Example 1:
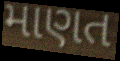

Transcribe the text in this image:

માણત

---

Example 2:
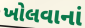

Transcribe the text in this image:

ખોલવાનાં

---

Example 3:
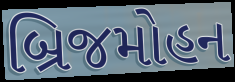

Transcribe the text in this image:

બ્રિજમોહન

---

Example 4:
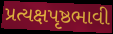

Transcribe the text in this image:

પ્રત્યક્ષપૃષ્ઠભાવી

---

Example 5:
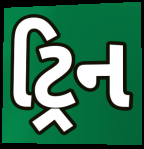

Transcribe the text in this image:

ટ્રિન